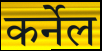
कर्नेल